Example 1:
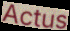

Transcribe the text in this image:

Actus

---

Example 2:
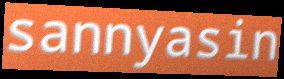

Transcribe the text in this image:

sannyasin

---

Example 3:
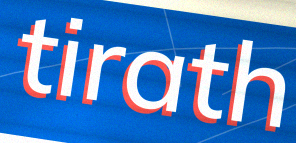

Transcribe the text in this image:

tirath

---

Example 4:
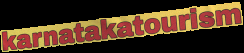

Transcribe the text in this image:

karnatakatourism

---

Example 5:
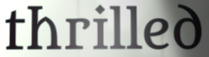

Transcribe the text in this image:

thrilled